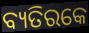
ବ୍ୟତିରକେ